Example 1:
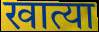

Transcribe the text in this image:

खात्या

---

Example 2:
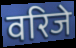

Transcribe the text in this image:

वरिजे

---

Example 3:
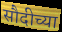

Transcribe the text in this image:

सौदीच्या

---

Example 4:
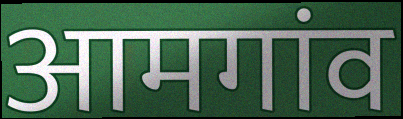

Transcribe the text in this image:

आमगांव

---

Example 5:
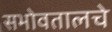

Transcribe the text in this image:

सभोवतालचे